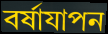
বর্ষাযাপন